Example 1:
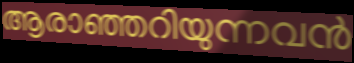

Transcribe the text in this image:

ആരാഞ്ഞറിയുന്നവൻ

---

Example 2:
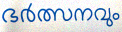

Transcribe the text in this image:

ഭർത്സനവും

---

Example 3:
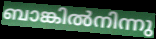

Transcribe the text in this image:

ബാങ്കിൽനിന്നു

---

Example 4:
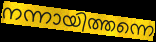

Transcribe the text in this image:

നന്നായിത്തന്നെ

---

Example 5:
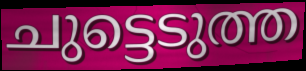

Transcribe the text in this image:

ചുട്ടെടുത്ത